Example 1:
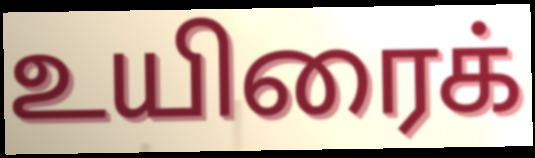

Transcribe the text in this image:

உயிரைக்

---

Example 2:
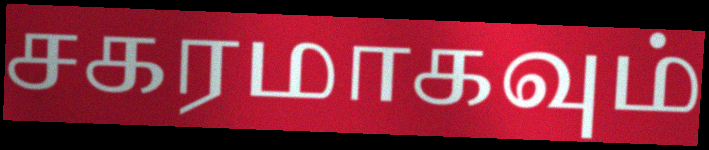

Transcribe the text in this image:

சகரமாகவும்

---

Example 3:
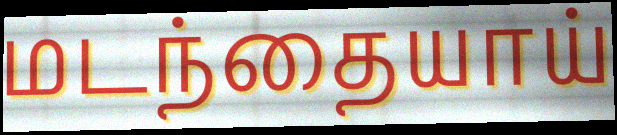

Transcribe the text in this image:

மடந்தையாய்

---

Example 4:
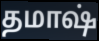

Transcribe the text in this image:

தமாஷ்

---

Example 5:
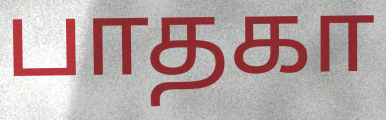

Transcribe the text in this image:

பாதகா